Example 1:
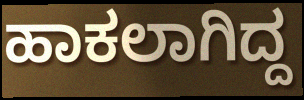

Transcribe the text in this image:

ಹಾಕಲಾಗಿದ್ದ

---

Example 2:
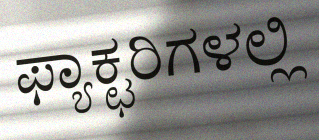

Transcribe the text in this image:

ಫ್ಯಾಕ್ಟರಿಗಳಲ್ಲಿ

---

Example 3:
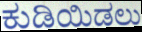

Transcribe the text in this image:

ಕುಡಿಯಿಡಲು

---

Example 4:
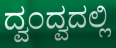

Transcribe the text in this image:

ದ್ವಂದ್ವದಲ್ಲಿ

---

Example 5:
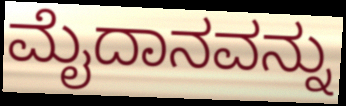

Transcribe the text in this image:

ಮೈದಾನವನ್ನು